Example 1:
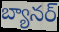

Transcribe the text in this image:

బ్యానర్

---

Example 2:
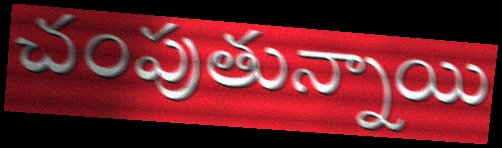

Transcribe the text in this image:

చంపుతున్నాయి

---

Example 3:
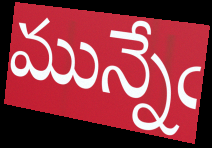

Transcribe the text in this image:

మున్నేఁ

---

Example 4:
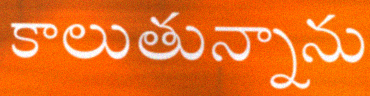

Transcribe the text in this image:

కాలుతున్నాను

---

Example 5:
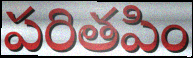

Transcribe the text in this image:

పరితపిం